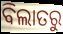
ବିଲାତରୁ